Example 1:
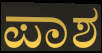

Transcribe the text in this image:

ಪಾಶ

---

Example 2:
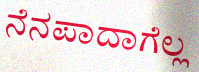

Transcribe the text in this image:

ನೆನಪಾದಾಗೆಲ್ಲ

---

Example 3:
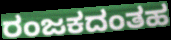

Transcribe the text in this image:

ರಂಜಕದಂತಹ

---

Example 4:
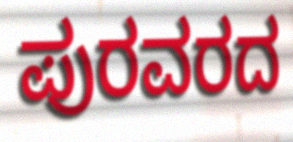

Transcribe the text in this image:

ಪುರವರದ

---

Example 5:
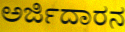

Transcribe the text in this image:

ಅರ್ಜಿದಾರನ